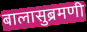
बालासुब्रमणी